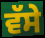
ਵੱਸੇ